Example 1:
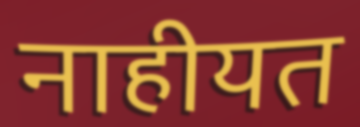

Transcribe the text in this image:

नाहीयत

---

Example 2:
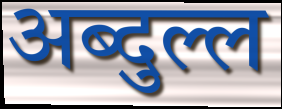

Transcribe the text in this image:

अब्दुल्ल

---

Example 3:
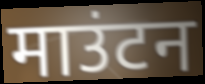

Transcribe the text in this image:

माउंटन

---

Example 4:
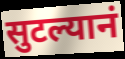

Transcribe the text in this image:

सुटल्यानं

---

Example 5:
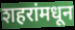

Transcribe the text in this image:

शहरांमधून